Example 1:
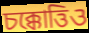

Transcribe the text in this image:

চক্কোত্তিও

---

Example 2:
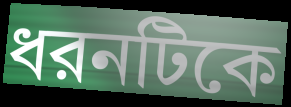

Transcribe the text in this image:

ধরনটিকে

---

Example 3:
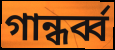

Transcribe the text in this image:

গান্ধর্ব্ব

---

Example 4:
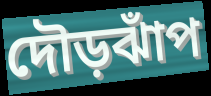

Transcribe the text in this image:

দৌড়ঝাঁপ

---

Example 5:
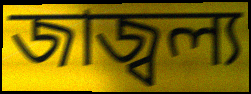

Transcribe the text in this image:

জাজ্বল্য